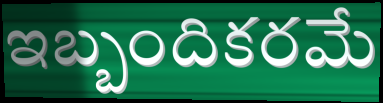
ఇబ్బందికరమే